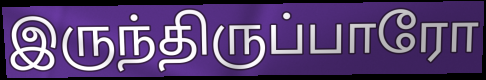
இருந்திருப்பாரோ